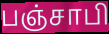
பஞ்சாபி